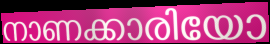
നാണക്കാരിയോ